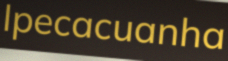
Ipecacuanha